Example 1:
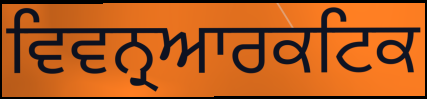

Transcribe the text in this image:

ਵਿਵਨ੍ਰਆਰਕਟਿਕ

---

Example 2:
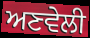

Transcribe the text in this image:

ਅਣਵੇਲੀ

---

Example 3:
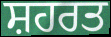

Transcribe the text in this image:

ਸ਼ਹਰਤ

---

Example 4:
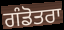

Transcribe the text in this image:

ਗੰਡੋਤਰਾ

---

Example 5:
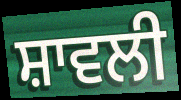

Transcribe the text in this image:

ਸ਼ਾਵਲੀ